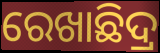
ରେଖାଛିଦ୍ର